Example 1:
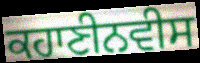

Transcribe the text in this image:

ਕਹਾਣੀਨਵੀਸ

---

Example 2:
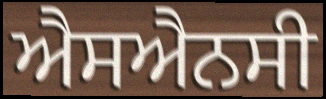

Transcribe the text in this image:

ਐਸਐਨਸੀ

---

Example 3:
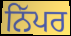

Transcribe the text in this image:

ਨਿੱਪਰ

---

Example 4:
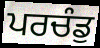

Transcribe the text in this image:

ਪਰਚੰਡੁ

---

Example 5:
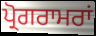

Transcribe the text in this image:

ਪ੍ਰੋਗਰਾਮਰਾਂ